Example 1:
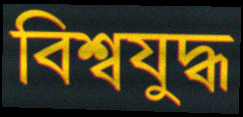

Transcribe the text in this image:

বিশ্বযুদ্ধ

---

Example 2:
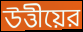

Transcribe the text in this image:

উত্তীয়ের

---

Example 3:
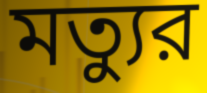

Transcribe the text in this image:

মত্যুর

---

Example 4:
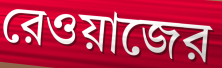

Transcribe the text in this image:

রেওয়াজের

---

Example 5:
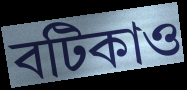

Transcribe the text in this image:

বটিকাও